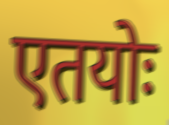
एतयोः